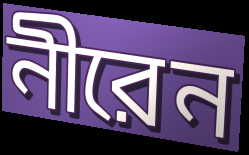
নীরেন